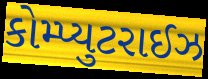
કોમ્પ્યુટરાઈઝ